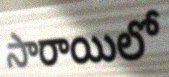
సారాయిలో